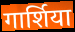
गार्शिया